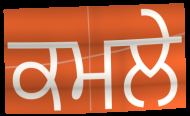
ਕਮਲੇ